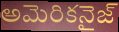
అమెరికనైజ్